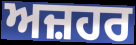
ਅਜ਼ਹਰ